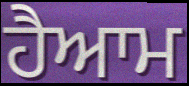
ਹੈਆਮ